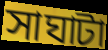
সাঘাটা